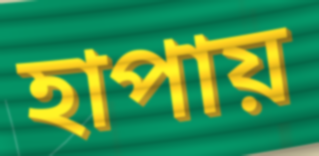
হাপায়